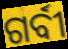
ଗର୍ବୀ